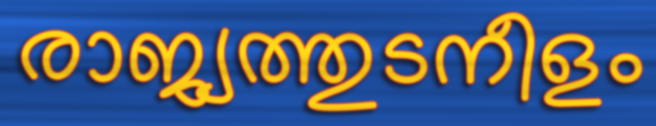
രാജ്യത്തുടനീളം